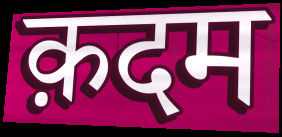
क़दम